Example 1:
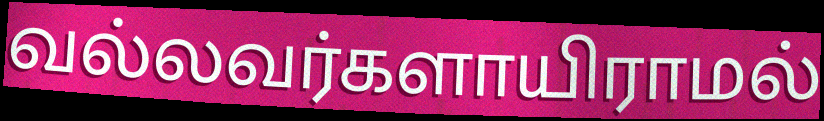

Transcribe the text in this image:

வல்லவர்களாயிராமல்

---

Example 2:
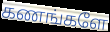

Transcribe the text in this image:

கணங்களே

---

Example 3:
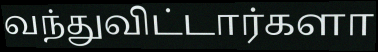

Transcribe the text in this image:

வந்துவிட்டார்களா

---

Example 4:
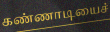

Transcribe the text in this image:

கண்ணாடியைச்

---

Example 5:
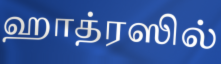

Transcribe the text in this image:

ஹாத்ரஸில்